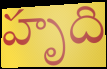
హృది